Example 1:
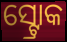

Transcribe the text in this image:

ସ୍ଟ୍ରୋକ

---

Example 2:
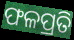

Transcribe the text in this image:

ଫଳପ୍ରତି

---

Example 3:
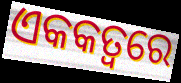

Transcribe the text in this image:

ଏକକତ୍ୱରେ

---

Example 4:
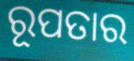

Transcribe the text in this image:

ରୂପତାର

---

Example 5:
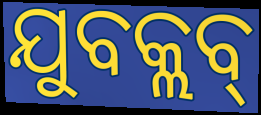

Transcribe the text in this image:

ଯୁବକ୍ଲବ୍